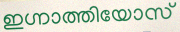
ഇഗ്നാത്തിയോസ്